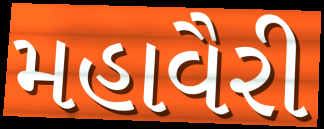
મહાવૈરી